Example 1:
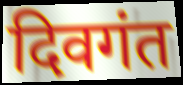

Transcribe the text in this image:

दिवगंत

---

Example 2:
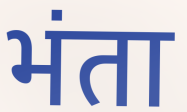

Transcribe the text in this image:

भंता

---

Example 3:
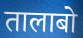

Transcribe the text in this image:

तालाबो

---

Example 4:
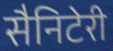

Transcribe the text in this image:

सैनिटेरी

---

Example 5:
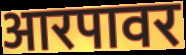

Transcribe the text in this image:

आरपावर